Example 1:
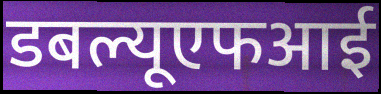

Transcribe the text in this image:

डबल्यूएफआई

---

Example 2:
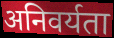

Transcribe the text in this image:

अनिवर्यता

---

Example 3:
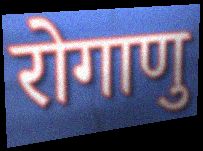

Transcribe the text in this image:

रोगाणु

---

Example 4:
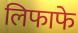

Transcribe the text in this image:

लिफाफे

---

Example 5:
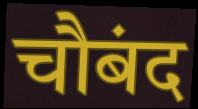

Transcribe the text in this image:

चौबंद